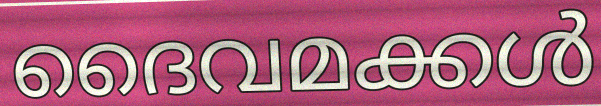
ദൈവമക്കൾ